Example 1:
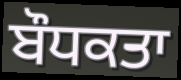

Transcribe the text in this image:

ਬੌਧਕਤਾ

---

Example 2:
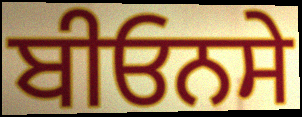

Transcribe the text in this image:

ਬੀਓਨਸੇ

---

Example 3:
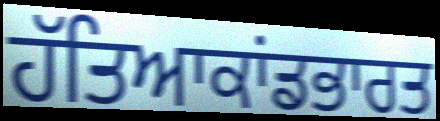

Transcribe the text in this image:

ਹੱਤਿਆਕਾਂਡਭਾਰਤ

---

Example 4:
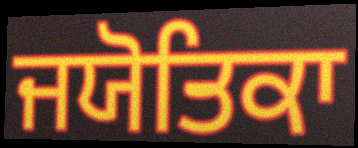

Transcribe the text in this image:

ਜਯੋਤਿਕਾ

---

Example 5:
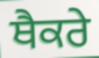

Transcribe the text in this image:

ਥੈਕਰੇ